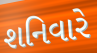
શનિવારે